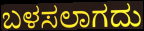
ಬಳಸಲಾಗದು